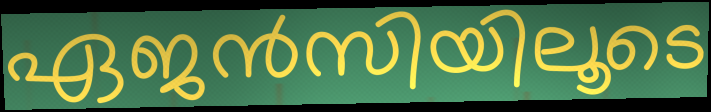
ഏജൻസിയിലൂടെ